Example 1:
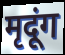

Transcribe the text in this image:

मृदूंग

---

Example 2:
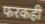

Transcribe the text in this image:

फरकही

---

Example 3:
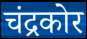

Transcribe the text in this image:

चंद्रकोर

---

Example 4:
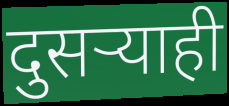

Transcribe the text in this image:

दुसऱ्याही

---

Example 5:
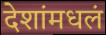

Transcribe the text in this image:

देशांमधलं